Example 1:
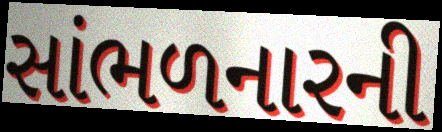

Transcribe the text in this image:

સાંભળનારની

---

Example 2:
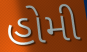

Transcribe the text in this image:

હોમી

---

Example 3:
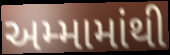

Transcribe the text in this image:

અમ્મામાંથી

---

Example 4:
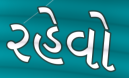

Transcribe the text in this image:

રહેવો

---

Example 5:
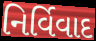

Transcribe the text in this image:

નિર્વિવાદ